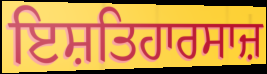
ਇਸ਼ਤਿਹਾਰਸਾਜ਼